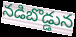
నడిబొడ్డున